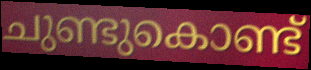
ചുണ്ടുകൊണ്ട്